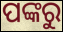
ପଙ୍କରୁ